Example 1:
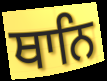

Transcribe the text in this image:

ਥਾਨਿ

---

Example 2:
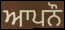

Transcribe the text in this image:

ਆਪਨੌ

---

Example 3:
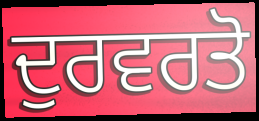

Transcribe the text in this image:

ਦੁਰਵਰਤੋ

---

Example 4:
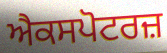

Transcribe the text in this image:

ਐਕਸਪੋਟਰਜ਼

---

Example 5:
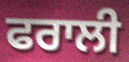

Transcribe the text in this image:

ਫਰਾਲੀ